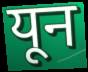
यून